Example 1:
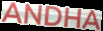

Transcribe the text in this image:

ANDHA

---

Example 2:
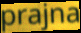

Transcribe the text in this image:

prajna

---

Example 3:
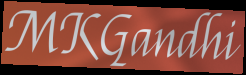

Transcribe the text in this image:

MKGandhi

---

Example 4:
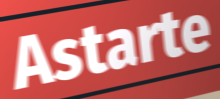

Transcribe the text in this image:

Astarte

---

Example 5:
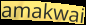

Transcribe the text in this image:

amakwai